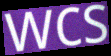
wcs